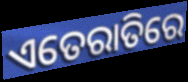
ଏତେରାତିରେ